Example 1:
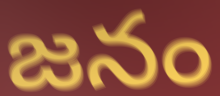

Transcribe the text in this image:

జనం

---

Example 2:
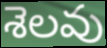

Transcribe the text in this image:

శెలవు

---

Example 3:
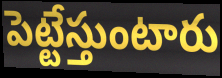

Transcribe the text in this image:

పెట్టేస్తుంటారు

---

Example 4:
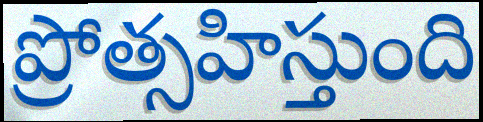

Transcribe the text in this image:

ప్రోత్సహిస్తుంది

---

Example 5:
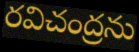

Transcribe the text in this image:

రవిచంద్రను